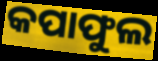
କପାଫୁଲ